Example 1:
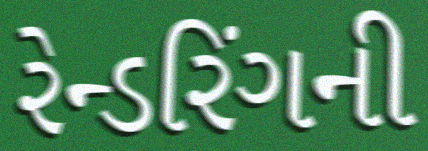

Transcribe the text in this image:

રેન્ડરિંગની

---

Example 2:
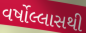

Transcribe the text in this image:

વર્ષોલ્લાસથી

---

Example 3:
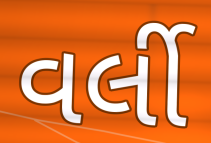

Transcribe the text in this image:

વર્લી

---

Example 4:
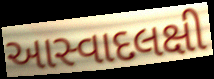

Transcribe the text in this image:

આસ્વાદલક્ષી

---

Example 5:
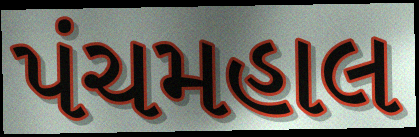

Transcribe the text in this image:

પંચમહાલ